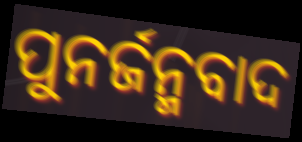
ପୁନର୍ଜନ୍ମବାଦ